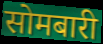
सोमबारी